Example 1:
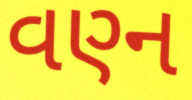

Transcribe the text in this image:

વણ્ન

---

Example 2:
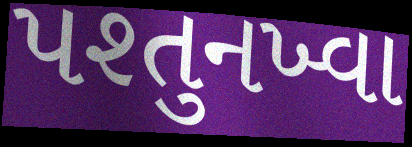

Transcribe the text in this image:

પશ્તુનખ્વા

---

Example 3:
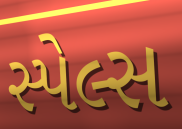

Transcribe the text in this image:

સ્પેલ્સ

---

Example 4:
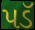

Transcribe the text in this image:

પડૅ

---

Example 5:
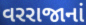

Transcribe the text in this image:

વરરાજાનાં